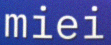
miei